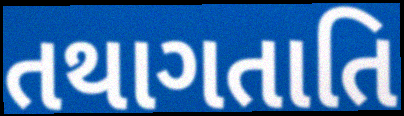
તથાગતાતિ